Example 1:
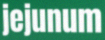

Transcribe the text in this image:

jejunum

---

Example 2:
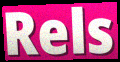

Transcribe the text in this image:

Rels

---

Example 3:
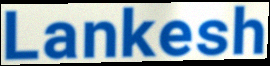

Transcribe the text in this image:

Lankesh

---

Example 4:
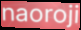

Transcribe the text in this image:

naoroji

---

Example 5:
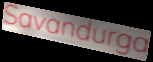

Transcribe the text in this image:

Savandurga